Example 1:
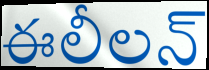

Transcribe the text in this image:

ఈలీలన్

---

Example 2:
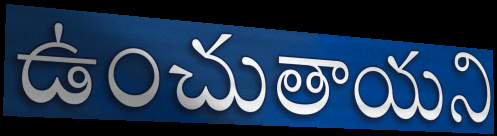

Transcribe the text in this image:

ఉంచుతాయని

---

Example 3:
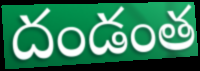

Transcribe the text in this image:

దండంత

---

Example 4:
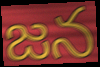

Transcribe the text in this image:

జన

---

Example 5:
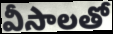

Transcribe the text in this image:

వీసాలతో